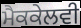
ਮੈਕਕੇਲਵੀ